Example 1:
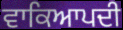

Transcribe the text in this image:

ਵਾਕਿਆਪਦੀ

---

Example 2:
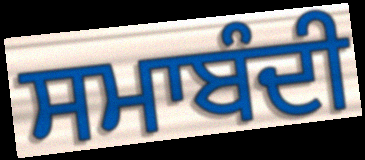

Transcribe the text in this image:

ਸਮਾਬੰਦੀ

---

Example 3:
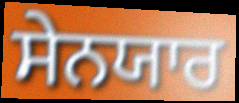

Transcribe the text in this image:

ਸੇਨਯਾਰ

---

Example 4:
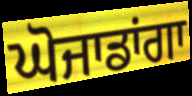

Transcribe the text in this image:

ਘੋਜਾਡਾਂਗਾ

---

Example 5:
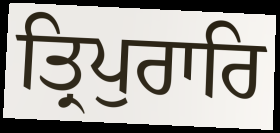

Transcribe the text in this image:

ਤ੍ਰਿਪੁਰਾਰਿ